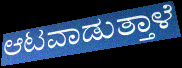
ಆಟವಾಡುತ್ತಾಳೆ